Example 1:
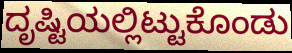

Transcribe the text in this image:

ದೃಷ್ಟಿಯಲ್ಲಿಟ್ಟುಕೊಂಡು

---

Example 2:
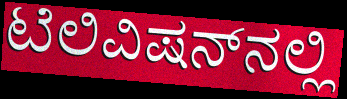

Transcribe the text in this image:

ಟೆಲಿವಿಷನ್‌ನಲ್ಲಿ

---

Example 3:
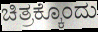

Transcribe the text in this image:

ಚಿತ್ರಕ್ಕೊಂದು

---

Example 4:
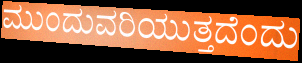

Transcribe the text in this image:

ಮುಂದುವರಿಯುತ್ತದೆಂದು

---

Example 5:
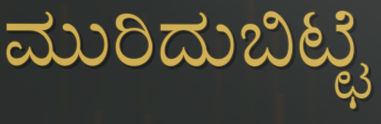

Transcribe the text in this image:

ಮುರಿದುಬಿಟ್ಟೆ